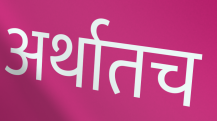
अर्थातच